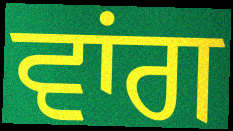
ਵਾਂਗ